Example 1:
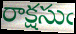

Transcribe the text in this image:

రాక్షసుఁ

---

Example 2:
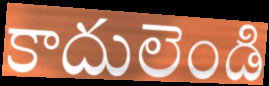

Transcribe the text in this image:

కాదులెండి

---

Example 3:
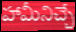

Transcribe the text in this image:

హామీనిచ్చే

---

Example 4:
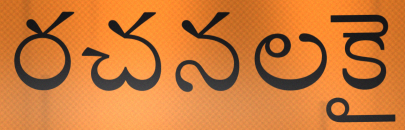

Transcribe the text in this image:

రచనలకై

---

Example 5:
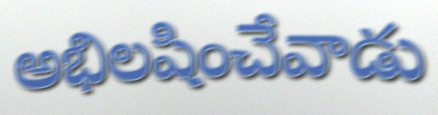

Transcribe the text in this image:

అభిలషించేవాడు